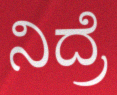
ನಿದ್ರೆ